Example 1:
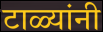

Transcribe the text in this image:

टाळ्यांनी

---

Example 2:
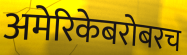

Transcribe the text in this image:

अमेरिकेबरोबरच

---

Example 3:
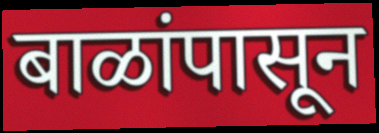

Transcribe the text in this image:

बाळांपासून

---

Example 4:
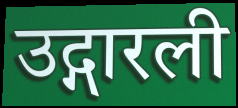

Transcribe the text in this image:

उद्गारली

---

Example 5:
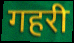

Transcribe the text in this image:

गहरी